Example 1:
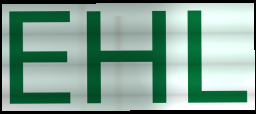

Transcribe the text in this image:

EHL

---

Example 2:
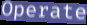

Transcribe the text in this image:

Operate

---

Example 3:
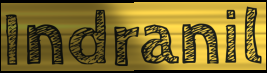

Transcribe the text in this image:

Indranil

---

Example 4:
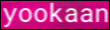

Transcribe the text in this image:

yookaan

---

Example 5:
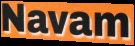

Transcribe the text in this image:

Navam